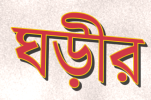
ঘড়ীর